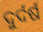
ଦୁର୍ଦର୍ଷ